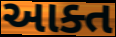
આક્ત